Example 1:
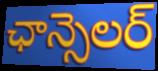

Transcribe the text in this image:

ఛాన్సెలర్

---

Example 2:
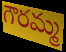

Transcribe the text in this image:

గౌరమ్మ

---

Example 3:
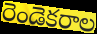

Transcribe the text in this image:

రెండెకరాల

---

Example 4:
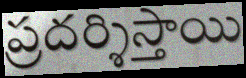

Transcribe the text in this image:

ప్రదర్శిస్తాయి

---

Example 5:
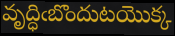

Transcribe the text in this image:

వృద్ధిఁబొందుటయొక్క